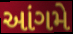
આંગમે